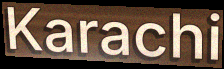
Karachi